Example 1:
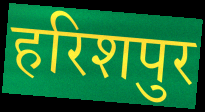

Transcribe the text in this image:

हरिशपुर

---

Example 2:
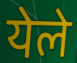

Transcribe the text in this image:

येले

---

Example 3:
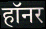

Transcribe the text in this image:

हॉनर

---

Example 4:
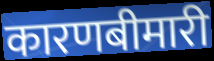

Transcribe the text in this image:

कारणबीमारी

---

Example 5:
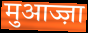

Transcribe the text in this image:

मुआज्ज़ा